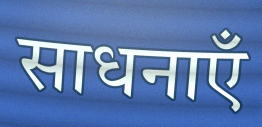
साधनाएँ